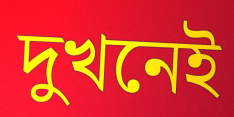
দুখনেই